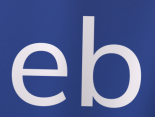
eb